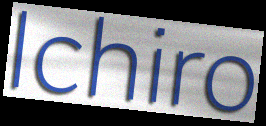
Ichiro